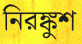
নিরঙ্কুশ